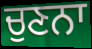
ਚੁਣਨਾ